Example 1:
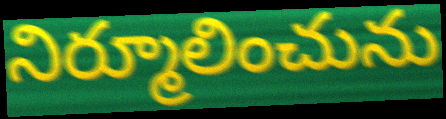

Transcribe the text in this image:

నిర్మూలించును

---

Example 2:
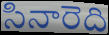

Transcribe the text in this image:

సినారెది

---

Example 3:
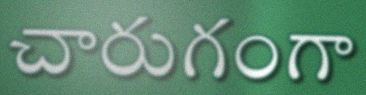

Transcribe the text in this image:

చారుగంగా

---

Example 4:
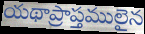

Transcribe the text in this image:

యథాప్రాప్తములైన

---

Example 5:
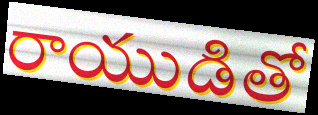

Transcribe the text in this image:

రాయుడితో